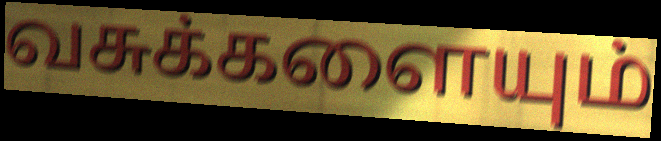
வசுக்களையும்